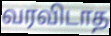
வரவிடாத